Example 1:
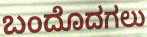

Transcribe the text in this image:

ಬಂದೊದಗಲು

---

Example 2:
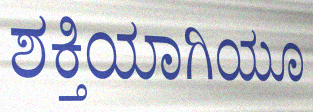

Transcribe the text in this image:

ಶಕ್ತಿಯಾಗಿಯೂ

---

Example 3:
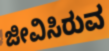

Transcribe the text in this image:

ಜೀವಿಸಿರುವ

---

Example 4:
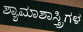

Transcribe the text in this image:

ಶ್ಯಾಮಾಶಾಸ್ತ್ರಿಗಳ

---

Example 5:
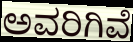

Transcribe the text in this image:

ಅವರಿಗಿವೆ